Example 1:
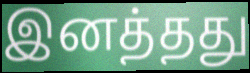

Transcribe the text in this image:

இனத்தது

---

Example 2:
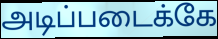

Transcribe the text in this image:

அடிப்படைக்கே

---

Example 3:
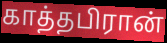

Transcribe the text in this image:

காத்தபிரான்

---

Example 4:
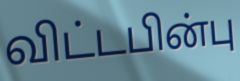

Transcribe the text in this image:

விட்டபின்பு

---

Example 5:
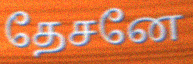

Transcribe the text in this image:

தேசனே